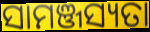
ସାମଞ୍ଜସ୍ୟତା